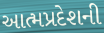
આત્મપ્રદેશની